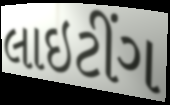
લાઇટીંગ